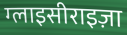
ग्लाइसीराइज़ा